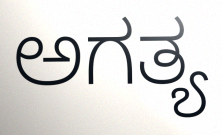
ಅಗತ್ಯ